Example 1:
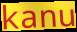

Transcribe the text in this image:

kanu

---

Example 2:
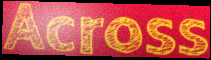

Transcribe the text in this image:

Across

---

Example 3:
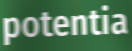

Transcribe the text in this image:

potentia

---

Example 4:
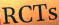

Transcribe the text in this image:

RCTs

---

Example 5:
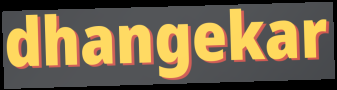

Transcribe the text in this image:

dhangekar